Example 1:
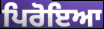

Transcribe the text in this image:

ਪਿਰੋਇਆ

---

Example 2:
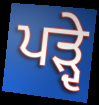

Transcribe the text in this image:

ਪੜ੍ਦੇ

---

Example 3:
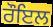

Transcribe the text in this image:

ਰੌਇਲ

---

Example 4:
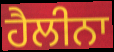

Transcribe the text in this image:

ਹੈਲੀਨਾ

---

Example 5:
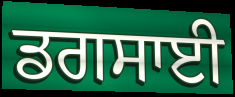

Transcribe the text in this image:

ਡਗਸਾਈ